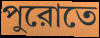
পুরোতে